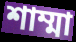
শাম্মা